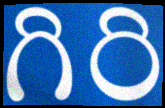
గిరి